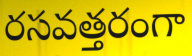
రసవత్తరంగా